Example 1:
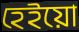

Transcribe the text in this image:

হেইয়ো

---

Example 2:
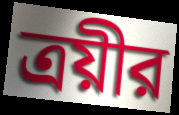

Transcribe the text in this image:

ত্রয়ীর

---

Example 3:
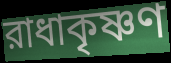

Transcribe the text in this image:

রাধাকৃষ্ণণ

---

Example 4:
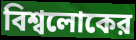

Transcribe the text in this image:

বিশ্বলোকের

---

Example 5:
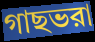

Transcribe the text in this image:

গাছভরা